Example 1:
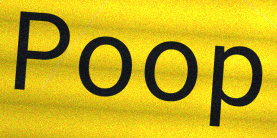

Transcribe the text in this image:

Poop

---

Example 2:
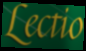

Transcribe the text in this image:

Lectio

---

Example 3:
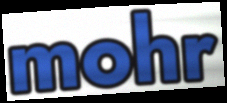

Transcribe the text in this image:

mohr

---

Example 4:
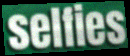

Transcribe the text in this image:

selfies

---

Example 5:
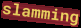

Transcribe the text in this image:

slamming